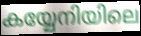
കയ്യേനിയിലെ